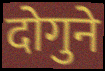
दोगुने